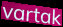
vartak